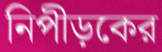
নিপীড়কের